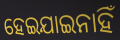
ହେଇଯାଇନାହିଁ